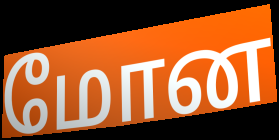
மோன